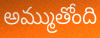
అమ్ముతోంది